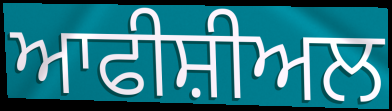
ਆਫੀਸ਼ੀਅਲ